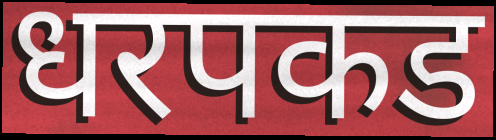
धरपकड